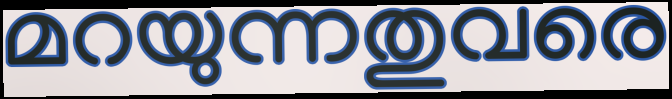
മറയുന്നതുവരെ